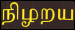
நிழறய